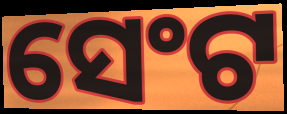
ସେଂଟ